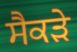
ਸੈਕੜੇ